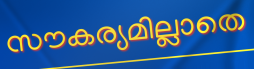
സൗകര്യമില്ലാതെ